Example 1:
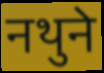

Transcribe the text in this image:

नथुने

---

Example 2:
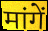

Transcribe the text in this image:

मांगें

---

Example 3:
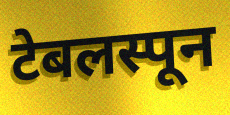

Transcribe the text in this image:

टेबलस्पून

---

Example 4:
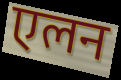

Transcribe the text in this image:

एलन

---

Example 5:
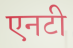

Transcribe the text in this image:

एनटी